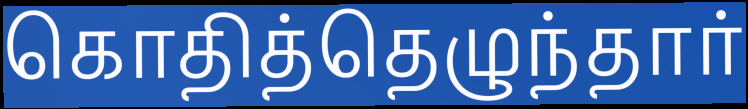
கொதித்தெழுந்தார்